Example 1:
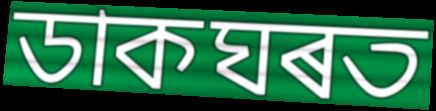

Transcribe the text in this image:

ডাকঘৰত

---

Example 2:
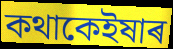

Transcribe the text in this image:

কথাকেইষাৰ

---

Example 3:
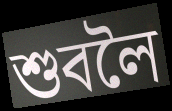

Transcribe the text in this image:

শুবলৈ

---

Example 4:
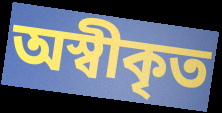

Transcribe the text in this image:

অস্বীকৃত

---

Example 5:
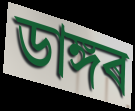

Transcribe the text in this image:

ডাঙ্গৰ